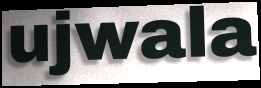
ujwala